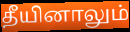
தீயினாலும்